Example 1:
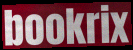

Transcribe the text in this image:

bookrix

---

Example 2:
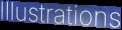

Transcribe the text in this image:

Illustrations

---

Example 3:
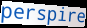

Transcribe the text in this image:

perspire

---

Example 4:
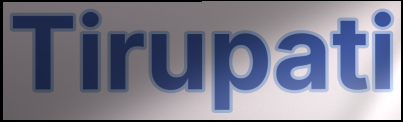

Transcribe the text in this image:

Tirupati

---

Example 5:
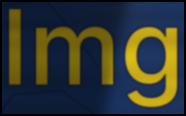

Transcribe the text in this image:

Img